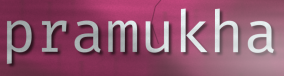
pramukha